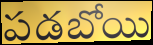
పడబోయి